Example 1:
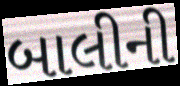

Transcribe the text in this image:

બાલીની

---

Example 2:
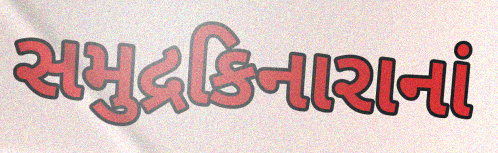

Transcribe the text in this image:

સમુદ્રકિનારાનાં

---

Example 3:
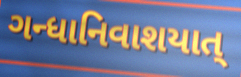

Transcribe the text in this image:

ગન્ધાનિવાશયાત્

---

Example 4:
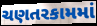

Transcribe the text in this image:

ચણતરકામમાં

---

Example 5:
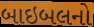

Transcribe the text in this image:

બાઇબલનો